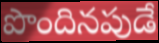
పొందినపుడే